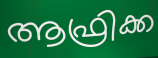
ആഫ്രിക്ക